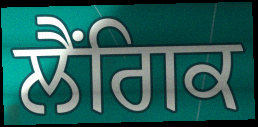
ਲੈਂਗਿਕ